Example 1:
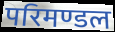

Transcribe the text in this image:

परिमण्डल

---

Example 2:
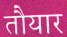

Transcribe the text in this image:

तौयार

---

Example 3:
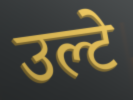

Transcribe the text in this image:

उल्टे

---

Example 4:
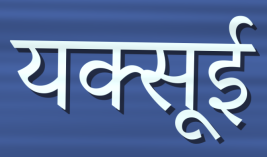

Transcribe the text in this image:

यक्सूई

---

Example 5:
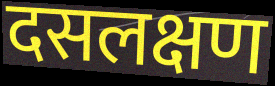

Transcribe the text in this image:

दसलक्षण